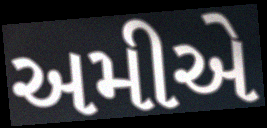
અમીએ